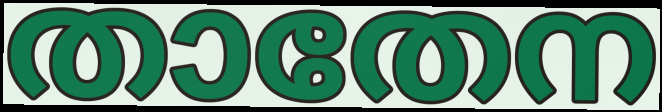
താതേന